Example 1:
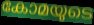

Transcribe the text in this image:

കോമയുടെ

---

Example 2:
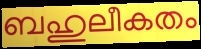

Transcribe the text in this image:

ബഹുലീകതം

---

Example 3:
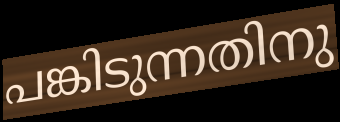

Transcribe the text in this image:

പങ്കിടുന്നതിനു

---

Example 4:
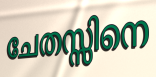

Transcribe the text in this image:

ചേതസ്സിനെ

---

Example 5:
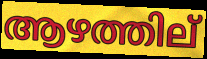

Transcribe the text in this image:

ആഴത്തില്